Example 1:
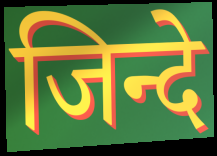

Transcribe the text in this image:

जिन्दे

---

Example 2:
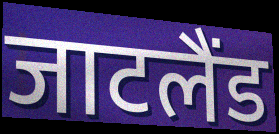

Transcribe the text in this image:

जाटलैंड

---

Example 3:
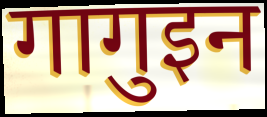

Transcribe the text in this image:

गागुइन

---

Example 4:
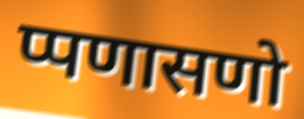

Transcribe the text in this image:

प्पणासणो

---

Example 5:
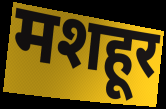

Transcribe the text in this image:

मशहूर